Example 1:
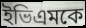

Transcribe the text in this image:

ইভিএমকে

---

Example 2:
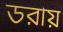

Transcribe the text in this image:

ডরায়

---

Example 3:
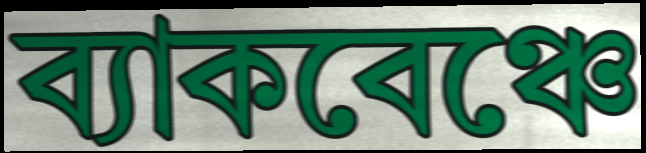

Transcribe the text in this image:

ব্যাকবেঞ্চে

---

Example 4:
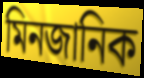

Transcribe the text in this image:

মিনজানিক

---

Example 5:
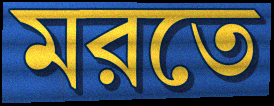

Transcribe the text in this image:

মরতে